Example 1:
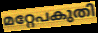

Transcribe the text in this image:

മറ്റേപകുതി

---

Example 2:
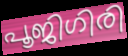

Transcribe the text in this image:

പൂജിഗിരി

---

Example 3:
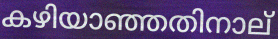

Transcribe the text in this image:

കഴിയാഞ്ഞതിനാല്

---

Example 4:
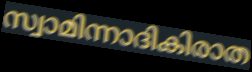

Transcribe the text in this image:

സ്വാമിന്നാദികിരാത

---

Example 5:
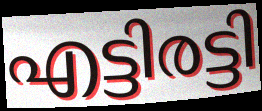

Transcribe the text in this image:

എട്ടിരട്ടി